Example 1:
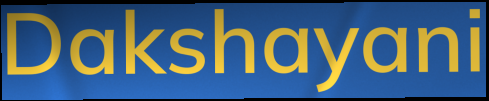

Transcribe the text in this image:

Dakshayani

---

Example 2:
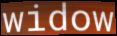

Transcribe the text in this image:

widow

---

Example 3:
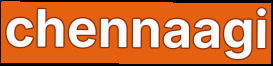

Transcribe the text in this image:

chennaagi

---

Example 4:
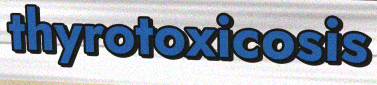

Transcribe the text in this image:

thyrotoxicosis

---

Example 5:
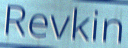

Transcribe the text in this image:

Revkin